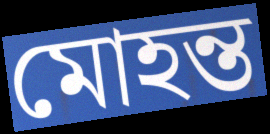
মোহন্ত